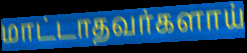
மாட்டாதவர்களாய்